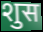
शुस